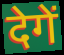
देगें